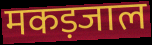
मकड़जाल